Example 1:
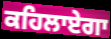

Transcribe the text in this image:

ਕਹਿਲਾਏਗਾ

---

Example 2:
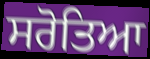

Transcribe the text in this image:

ਸਰੋਤਿਆ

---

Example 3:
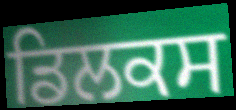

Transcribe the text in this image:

ਡਿਲਕਸ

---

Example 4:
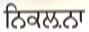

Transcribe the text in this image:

ਨਿਕਲ਼ਨਾ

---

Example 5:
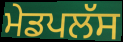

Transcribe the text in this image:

ਮੇਡਪਲੱਸ